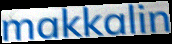
makkalin